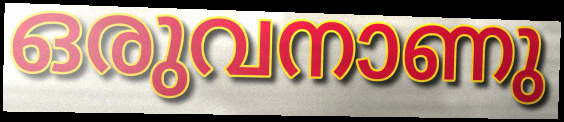
ഒരുവനാണു